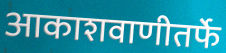
आकाशवाणीतर्फे